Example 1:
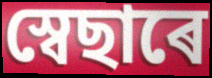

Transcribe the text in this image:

স্বেছাৰে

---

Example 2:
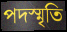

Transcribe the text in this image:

পদস্মৃতি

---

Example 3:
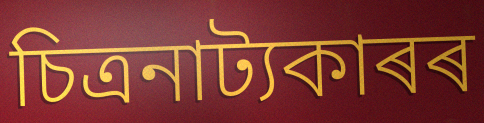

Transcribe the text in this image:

চিত্ৰনাট্যকাৰৰ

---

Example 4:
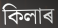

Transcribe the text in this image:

কিলাৰ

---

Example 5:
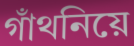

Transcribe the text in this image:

গাঁথনিয়ে